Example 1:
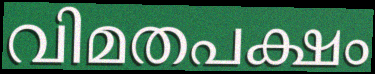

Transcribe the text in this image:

വിമതപക്ഷം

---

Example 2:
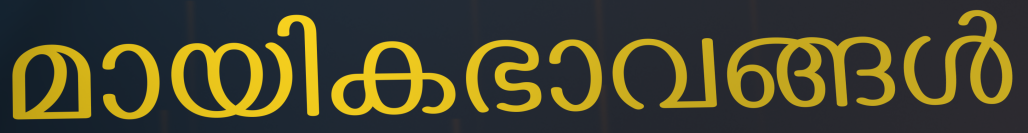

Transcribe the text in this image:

മായികഭാവങ്ങൾ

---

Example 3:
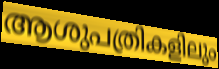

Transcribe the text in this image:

ആശുപത്രികളിലും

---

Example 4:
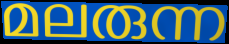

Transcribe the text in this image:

മലരുന്ന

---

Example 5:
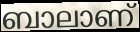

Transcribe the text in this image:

ബാലാണ്